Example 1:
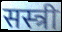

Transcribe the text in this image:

सस्त्री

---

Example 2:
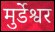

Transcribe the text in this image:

मुर्डेश्वर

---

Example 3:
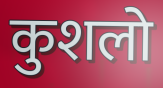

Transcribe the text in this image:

कुशलो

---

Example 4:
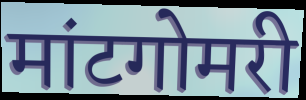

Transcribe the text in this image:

मांटगोमरी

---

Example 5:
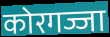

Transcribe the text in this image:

कोरगज्जा